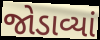
જોડાવ્યાં